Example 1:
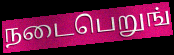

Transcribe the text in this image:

நடைபெறுங்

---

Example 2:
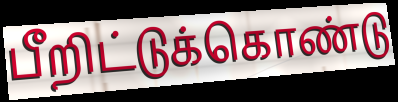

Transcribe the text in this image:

பீறிட்டுக்கொண்டு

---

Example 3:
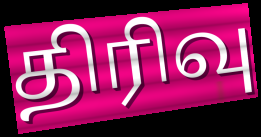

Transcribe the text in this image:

திரிவு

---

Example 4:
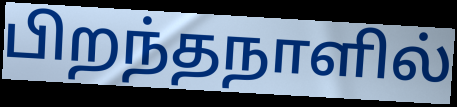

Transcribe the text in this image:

பிறந்தநாளில்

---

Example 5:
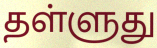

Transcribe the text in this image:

தள்ளுது